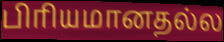
பிரியமானதல்ல